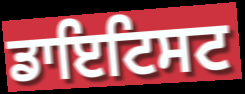
ਡਾਇਟਿਸਟ